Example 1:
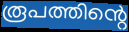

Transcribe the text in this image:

രൂപത്തിന്റെ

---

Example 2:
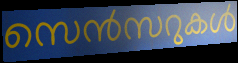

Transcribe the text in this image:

സെൻസറുകൾ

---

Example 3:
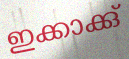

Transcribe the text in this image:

ഇക്കാക്കു്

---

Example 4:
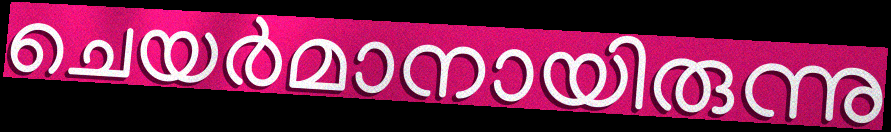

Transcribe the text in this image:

ചെയർമാനായിരുന്നു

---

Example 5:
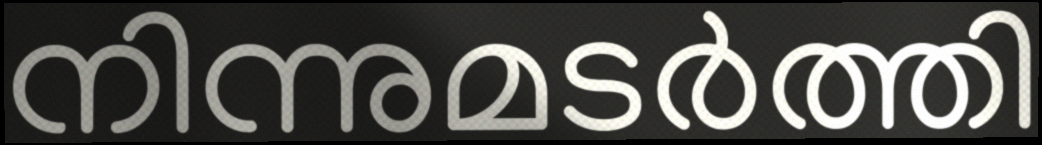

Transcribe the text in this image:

നിന്നുമടർത്തി